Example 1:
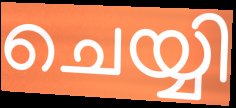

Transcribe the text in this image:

ചെയ്യി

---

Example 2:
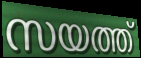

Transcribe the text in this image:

സയത്ത്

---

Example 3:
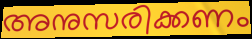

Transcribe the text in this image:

അനുസരിക്കണം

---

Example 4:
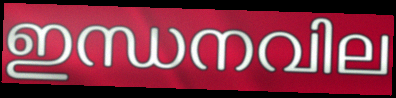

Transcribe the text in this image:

ഇന്ധനവില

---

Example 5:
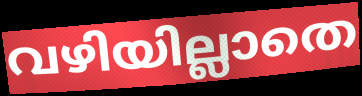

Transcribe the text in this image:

വഴിയില്ലാതെ